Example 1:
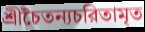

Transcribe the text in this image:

শ্রীচৈতন্যচরিতামৃত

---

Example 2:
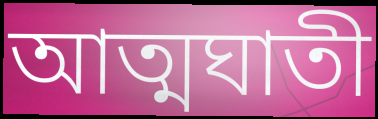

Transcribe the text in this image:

আত্মঘাতী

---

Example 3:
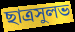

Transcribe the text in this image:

ছাত্রসুলভ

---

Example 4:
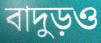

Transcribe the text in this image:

বাদুড়ও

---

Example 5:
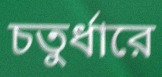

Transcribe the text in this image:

চতুর্ধারে